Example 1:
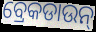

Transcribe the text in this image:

ବ୍ରେକଡାଉନ୍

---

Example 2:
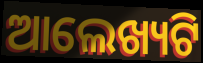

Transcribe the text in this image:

ଆଲେଖ୍ୟଟି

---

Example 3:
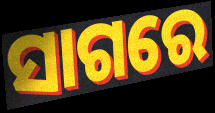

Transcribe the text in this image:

ସାଗରେ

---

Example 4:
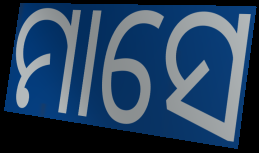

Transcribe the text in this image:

ମାସେ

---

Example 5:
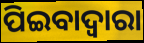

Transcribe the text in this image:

ପିଇବାଦ୍ଵାରା